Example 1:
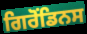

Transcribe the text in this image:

ਗਿਰੋਂਡਿਨਸ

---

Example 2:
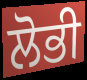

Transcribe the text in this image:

ਲੋਭੀ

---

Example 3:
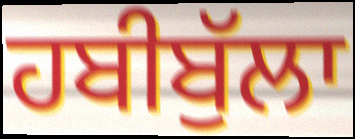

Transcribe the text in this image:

ਹਬੀਬੁੱਲਾ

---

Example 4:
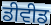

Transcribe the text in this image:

ਡੀਵੀਡ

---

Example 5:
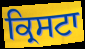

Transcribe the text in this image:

ਕ੍ਰਿਸਟਾ